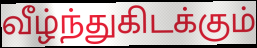
வீழ்ந்துகிடக்கும்